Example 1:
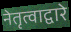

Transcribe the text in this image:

नेतृत्वाद्वारे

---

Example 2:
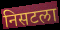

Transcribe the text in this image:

निसटला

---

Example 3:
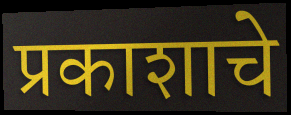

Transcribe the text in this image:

प्रकाशाचे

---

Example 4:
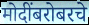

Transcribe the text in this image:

मोदींबरोबरचे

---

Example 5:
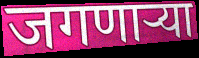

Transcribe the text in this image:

जगणार्‍या